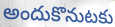
అందుకొనుటకు